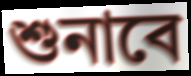
শুনাবে